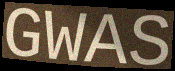
GWAS